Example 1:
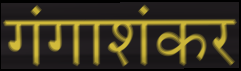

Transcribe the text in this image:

गंगाशंकर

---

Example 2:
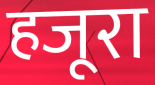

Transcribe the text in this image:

हजूरा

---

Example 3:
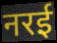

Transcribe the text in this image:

नरई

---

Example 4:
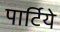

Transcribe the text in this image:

पार्टिये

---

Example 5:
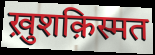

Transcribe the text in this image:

ख़ुशक़िस्मत